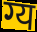
ग्य